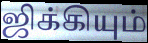
ஜிக்கியும்